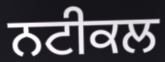
ਨਟੀਕਲ